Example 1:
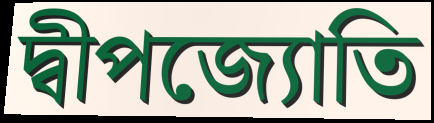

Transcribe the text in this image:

দ্বীপজ্যোতি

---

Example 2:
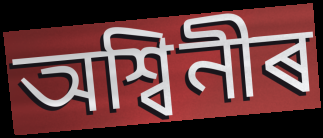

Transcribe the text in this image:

অশ্বিনীৰ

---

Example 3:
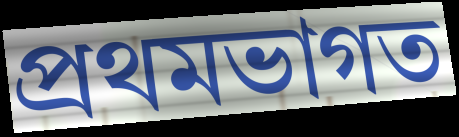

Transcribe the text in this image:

প্ৰথমভাগত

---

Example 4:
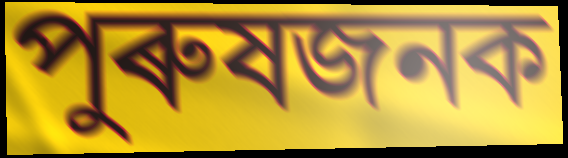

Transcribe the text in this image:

পুৰুষজনক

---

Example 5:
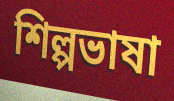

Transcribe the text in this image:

শিল্পভাষা